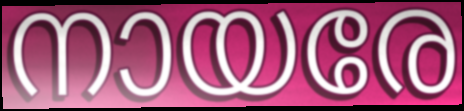
നായരേ